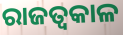
ରାଜତ୍ଵକାଳ